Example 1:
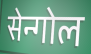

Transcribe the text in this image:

सेन्गोल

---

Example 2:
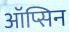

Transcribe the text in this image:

ऑप्सिन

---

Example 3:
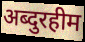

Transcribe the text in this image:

अब्दुरहीम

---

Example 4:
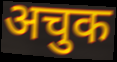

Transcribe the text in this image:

अचुक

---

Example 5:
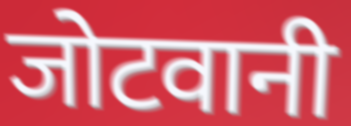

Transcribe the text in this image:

जोटवानी